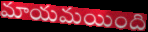
మాయమయింది